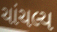
ચાંચલ્ય